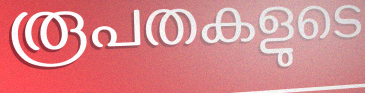
രൂപതകളുടെ